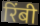
रिंबी